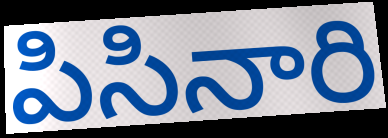
పిసినారి